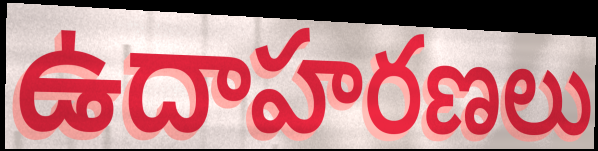
ఉదాహరణలు